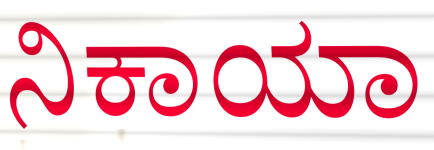
ನಿಕಾಯಾ